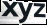
xyz